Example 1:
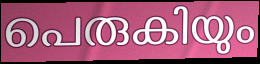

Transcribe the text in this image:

പെരുകിയും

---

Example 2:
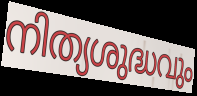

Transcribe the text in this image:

നിത്യശുദ്ധവും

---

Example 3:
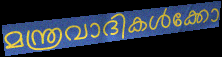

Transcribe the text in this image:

മന്ത്രവാദികൾക്കോ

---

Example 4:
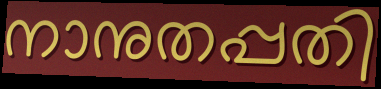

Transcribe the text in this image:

നാനുതപ്പതി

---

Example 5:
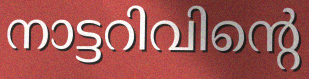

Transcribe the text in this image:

നാട്ടറിവിന്റെ